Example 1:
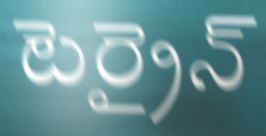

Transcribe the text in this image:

టెర్రైన్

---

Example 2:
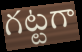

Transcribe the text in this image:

గట్టగా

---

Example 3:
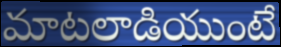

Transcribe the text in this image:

మాటలాడియుంటే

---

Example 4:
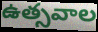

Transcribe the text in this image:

ఉత్సవాల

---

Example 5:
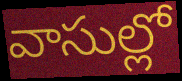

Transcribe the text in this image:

వాసుల్లో